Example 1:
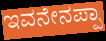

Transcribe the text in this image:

ಇವನೇನಪ್ಪಾ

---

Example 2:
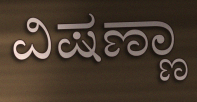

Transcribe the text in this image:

ವಿಷಣ್ಣಾ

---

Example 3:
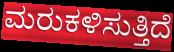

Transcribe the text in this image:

ಮರುಕಳಿಸುತ್ತಿದೆ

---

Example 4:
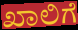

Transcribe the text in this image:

ಖಾಲಿಗೆ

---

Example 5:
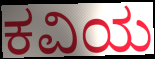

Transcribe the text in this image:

ಕವಿಯ